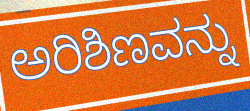
ಅರಿಶಿಣವನ್ನು